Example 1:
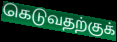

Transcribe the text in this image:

கெடுவதற்குக்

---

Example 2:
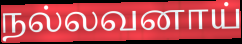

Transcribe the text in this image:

நல்லவனாய்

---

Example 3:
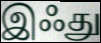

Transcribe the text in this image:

இஃது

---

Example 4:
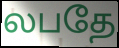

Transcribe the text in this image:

லபதே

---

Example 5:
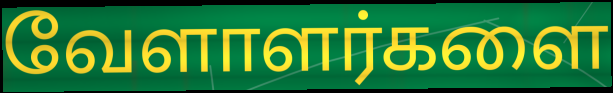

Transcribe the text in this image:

வேளாளர்களை